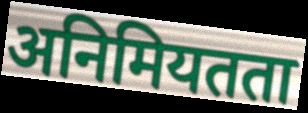
अनिमियतता